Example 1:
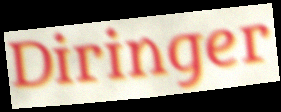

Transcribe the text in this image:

Diringer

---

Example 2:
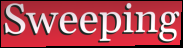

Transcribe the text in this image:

Sweeping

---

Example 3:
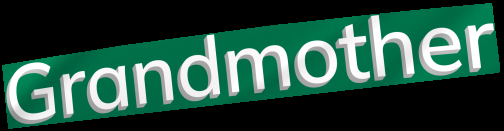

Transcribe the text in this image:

Grandmother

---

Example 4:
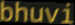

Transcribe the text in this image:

bhuvi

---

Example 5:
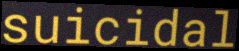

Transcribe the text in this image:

suicidal